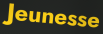
Jeunesse